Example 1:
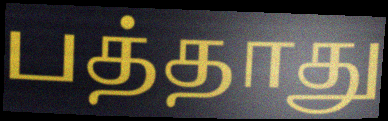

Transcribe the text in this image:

பத்தாது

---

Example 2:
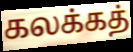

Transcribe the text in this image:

கலக்கத்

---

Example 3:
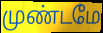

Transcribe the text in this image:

முண்டமே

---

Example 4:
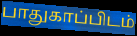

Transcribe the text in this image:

பாதுகாப்பிடம்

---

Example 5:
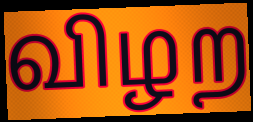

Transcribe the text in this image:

விழற